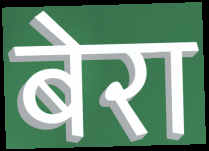
बेरा